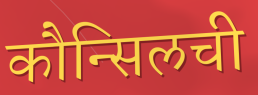
कौन्सिलची